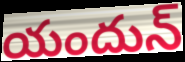
యందున్